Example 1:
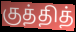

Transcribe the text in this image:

குத்தித்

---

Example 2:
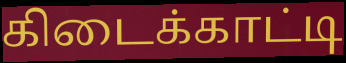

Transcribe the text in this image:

கிடைக்காட்டி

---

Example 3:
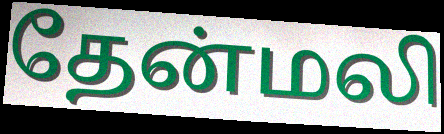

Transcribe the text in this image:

தேன்மலி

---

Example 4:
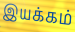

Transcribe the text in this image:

இயக்கம்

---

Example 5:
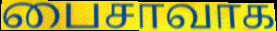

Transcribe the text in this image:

பைசாவாக